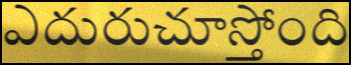
ఎదురుచూస్తోంది